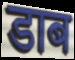
डाब